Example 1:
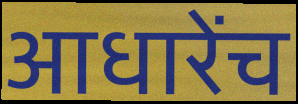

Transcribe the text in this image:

आधारेंच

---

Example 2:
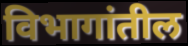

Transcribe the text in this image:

विभागांतील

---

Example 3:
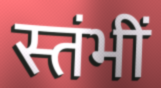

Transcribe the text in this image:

स्तंभीं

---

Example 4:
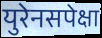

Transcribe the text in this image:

युरेनसपेक्षा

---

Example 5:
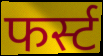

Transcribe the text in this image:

फर्स्ट